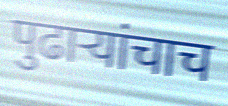
पुढाऱ्यांचाच